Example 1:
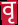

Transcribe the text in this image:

वृ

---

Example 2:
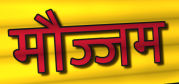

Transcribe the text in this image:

मौज्जम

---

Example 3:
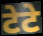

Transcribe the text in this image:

टेटे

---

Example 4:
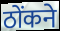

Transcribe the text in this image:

ठोंकने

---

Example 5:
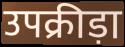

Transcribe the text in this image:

उपक्रीड़ा